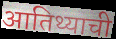
आतिथ्याची